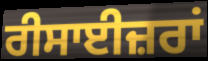
ਰੀਸਾਈਜ਼ਰਾਂ